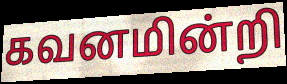
கவனமின்றி